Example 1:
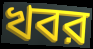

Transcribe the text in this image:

খবর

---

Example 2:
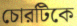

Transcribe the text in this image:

চোরটিকে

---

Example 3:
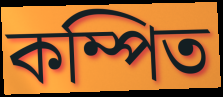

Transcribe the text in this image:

কম্পিত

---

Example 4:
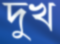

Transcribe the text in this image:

দুখ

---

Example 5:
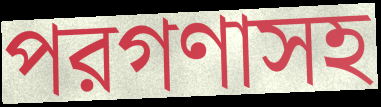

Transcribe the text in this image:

পরগণাসহ